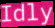
Idly